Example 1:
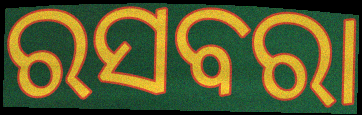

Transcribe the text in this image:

ରସବରା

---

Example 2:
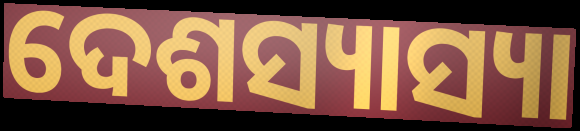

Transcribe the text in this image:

ଦେଶସ୍ୟାସ୍ୟା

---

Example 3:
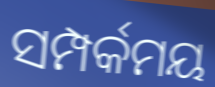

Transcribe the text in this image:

ସମ୍ପର୍କମୟ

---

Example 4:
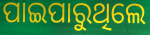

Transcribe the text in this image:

ପାଇପାରୁଥିଲେ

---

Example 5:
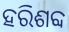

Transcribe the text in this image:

ହରିଶବ୍ଦ